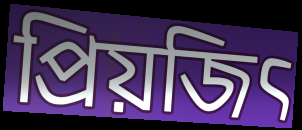
প্রিয়জিৎ